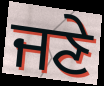
ਜਣੇ